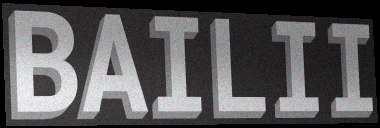
BAILII